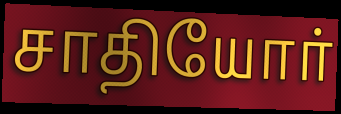
சாதியோர்